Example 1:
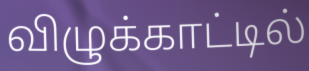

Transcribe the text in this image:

விழுக்காட்டில்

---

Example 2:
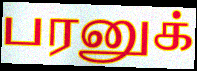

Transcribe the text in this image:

பரனுக்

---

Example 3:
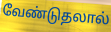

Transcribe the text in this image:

வேண்டுதலால்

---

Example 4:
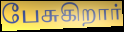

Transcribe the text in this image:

பேசுகிறார்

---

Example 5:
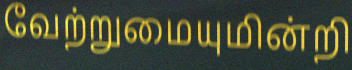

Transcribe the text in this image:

வேற்றுமையுமின்றி